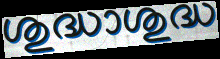
ശുദ്ധാശുദ്ധ